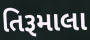
તિરૂમાલા